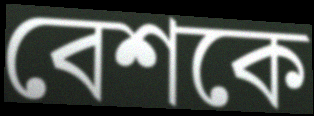
বেশকে